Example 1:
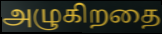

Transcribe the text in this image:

அழுகிறதை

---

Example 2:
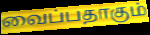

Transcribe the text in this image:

வைப்பதாகும்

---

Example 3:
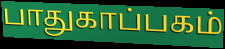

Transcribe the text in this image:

பாதுகாப்பகம்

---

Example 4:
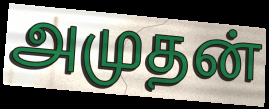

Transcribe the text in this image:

அமுதன்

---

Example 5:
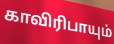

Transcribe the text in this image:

காவிரிபாயும்